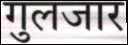
गुलजार